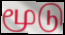
மூடு